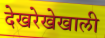
देखरेखेखाली